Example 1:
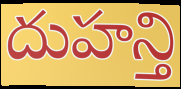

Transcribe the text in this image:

దుహన్తి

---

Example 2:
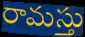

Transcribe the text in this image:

రామస్తు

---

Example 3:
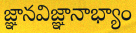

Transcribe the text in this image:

జ్ఞానవిజ్ఞానాభ్యాం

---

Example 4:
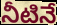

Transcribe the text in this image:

నీటినే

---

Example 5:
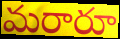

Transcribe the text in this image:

మరారూ